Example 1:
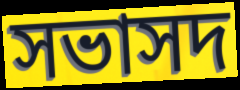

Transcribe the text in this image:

সভাসদ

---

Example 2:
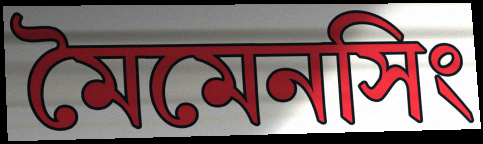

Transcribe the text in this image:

মৈমেনসিং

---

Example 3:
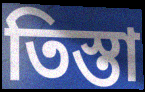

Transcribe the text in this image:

তিস্তা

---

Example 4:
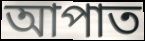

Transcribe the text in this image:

আপাত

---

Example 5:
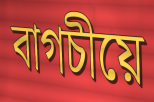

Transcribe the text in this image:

বাগচীয়ে